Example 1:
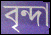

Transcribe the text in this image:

বৃন্দা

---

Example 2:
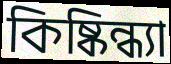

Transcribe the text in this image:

কিষ্কিন্ধ্যা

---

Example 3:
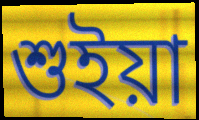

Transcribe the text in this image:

শুইয়া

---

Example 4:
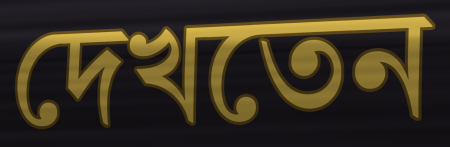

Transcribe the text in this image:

দেখতেন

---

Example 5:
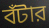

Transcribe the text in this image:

বঁটার